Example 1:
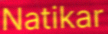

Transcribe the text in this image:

Natikar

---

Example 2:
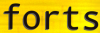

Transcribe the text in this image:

forts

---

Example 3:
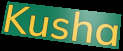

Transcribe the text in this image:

Kusha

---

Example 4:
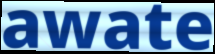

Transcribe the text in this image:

awate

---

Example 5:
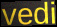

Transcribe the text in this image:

vedi